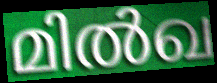
മിൽഖ